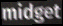
midget